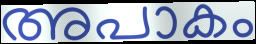
അപാകം